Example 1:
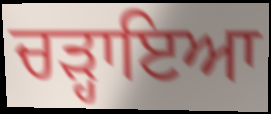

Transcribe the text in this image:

ਚੜ੍ਹਾਇਆ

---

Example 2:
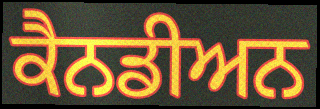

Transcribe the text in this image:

ਕੈਨਡੀਅਨ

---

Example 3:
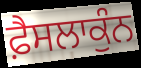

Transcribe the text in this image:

ਫ਼ੈਸਲਾਕੁੰਨ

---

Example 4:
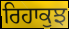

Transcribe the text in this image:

ਰਿਹਾਕੁਝ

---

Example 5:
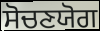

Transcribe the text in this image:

ਸੋਚਣਯੋਗ